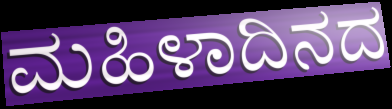
ಮಹಿಳಾದಿನದ